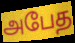
அபேத